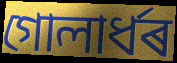
গোলাৰ্ধৰ